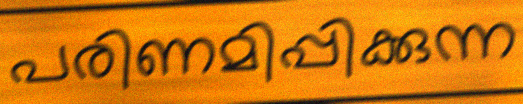
പരിണമിപ്പിക്കുന്ന